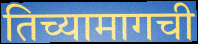
तिच्यामागची